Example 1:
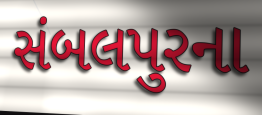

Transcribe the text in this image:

સંબલપુરના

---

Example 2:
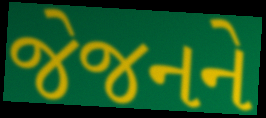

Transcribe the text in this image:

જેજનને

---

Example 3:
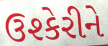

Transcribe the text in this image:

ઉશ્કેરીને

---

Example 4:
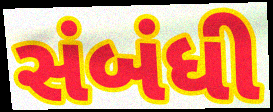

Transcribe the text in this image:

સંબંધી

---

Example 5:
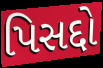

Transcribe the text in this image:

પિસદ્દો